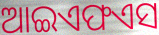
ଆଇଏଫଏସ